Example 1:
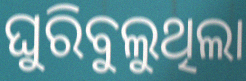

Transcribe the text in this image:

ଘୁରିବୁଲୁଥିଲା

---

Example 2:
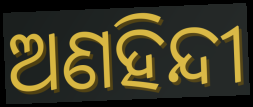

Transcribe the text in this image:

ଅଣହିନ୍ଦୀ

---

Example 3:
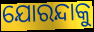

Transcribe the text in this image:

ଯୋରନ୍ଦାକୁ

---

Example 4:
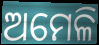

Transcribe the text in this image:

ଅମେଳି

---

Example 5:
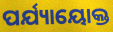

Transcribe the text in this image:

ପର୍ଯ୍ୟାୟୋକ୍ତ